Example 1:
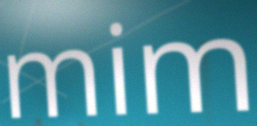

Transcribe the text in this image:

mim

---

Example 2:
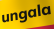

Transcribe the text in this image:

ungala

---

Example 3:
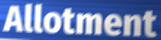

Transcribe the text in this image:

Allotment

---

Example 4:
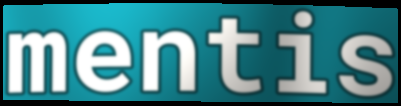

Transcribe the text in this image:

mentis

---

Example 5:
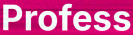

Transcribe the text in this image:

Profess